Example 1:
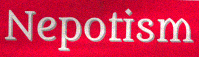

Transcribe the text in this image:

Nepotism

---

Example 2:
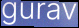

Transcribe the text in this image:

gurav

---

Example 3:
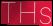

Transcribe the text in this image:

THs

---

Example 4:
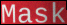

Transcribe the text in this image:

Mask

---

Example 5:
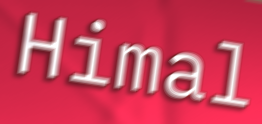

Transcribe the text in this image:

Himal